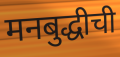
मनबुद्धीची